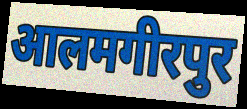
आलमगीरपुर